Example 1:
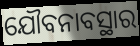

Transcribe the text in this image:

ଯୌବନାବସ୍ଥାର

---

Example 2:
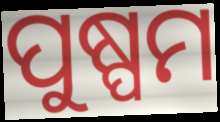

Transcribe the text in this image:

ପୁଷ୍ପମ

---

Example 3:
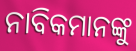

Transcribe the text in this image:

ନାବିକମାନଙ୍କୁ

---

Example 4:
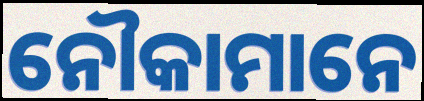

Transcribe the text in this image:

ନୌକାମାନେ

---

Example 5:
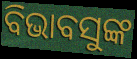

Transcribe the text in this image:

ବିଭାବସୁଙ୍କ